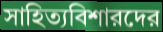
সাহিত্যবিশারদের